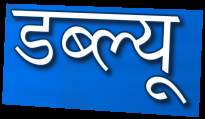
डब्ल्यू